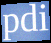
pdi